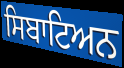
ਸਿਬਾਟਿਅਨ